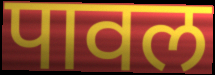
पावल